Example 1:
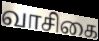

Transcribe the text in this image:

வாசிகை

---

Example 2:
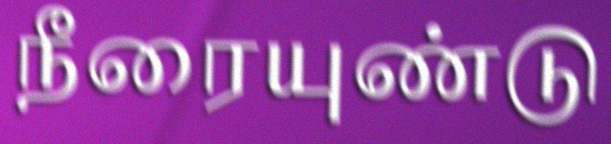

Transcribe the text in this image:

நீரையுண்டு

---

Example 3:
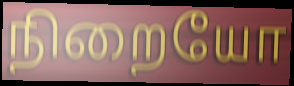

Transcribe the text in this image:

நிறையோ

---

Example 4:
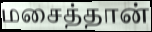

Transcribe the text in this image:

மசைத்தான்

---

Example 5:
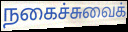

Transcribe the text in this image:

நகைச்சுவைக்